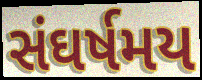
સંઘર્ષમય